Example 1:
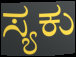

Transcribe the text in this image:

ಸ್ಯಕು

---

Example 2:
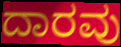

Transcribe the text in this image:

ದಾರವು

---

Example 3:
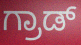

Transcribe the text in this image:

ಗ್ರಾಡ್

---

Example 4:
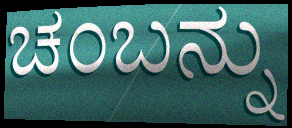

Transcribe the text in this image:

ಚಂಬನ್ನು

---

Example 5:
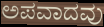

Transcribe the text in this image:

ಅಪವಾದವು